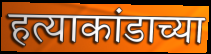
हत्याकांडाच्या